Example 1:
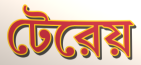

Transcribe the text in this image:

টেরেয়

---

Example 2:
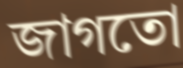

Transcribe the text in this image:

জাগতো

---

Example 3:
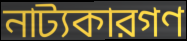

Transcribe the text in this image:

নাট্যকারগণ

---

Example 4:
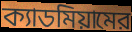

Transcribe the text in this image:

ক্যাডমিয়ামের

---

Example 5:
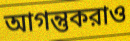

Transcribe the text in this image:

আগন্তুকরাও